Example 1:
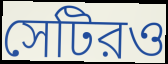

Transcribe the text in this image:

সেটিরও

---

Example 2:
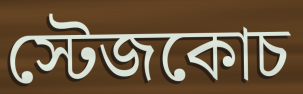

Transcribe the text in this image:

স্টেজকোচ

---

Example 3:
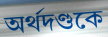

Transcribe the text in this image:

অর্থদণ্ডকে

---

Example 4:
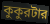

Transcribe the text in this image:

কুকুরটার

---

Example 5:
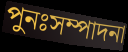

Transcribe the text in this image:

পুনঃসম্পাদনা